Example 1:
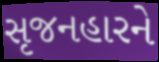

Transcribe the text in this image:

સૃજનહારને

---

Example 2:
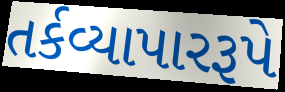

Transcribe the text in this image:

તર્કવ્યાપારરૂપે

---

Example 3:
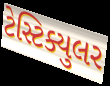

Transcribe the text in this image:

ટેસ્ટિક્યુલર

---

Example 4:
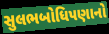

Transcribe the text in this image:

સુલભબોધિપણાનો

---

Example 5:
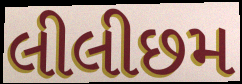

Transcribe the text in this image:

લીલીછમ